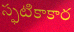
స్ఫటికాకార